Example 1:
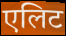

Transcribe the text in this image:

एलिट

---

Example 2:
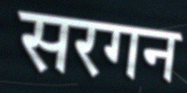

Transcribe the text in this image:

सरगन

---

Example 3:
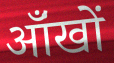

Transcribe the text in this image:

आंँखों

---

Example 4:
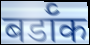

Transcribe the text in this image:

बर्डॉक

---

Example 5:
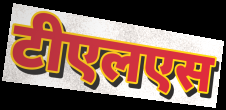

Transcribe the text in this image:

टीएलएस